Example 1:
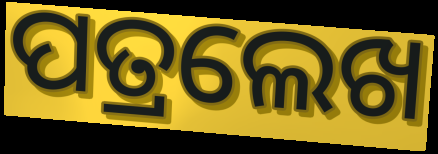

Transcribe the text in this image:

ପତ୍ରଲେଖ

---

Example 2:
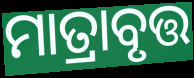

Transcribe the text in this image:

ମାତ୍ରାବୃତ୍ତ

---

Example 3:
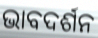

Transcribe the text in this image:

ଭାବଦର୍ଶନ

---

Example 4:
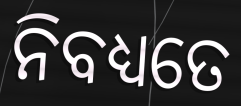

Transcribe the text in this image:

ନିବଧ୍ୟତେ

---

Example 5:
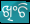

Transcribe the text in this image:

ଖିଂଚି